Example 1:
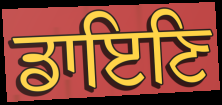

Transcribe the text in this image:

ਡਾਇਣਿ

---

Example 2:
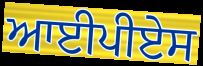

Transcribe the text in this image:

ਆਈਪੀਏਸ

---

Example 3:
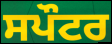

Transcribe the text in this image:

ਸਪੌਟਰ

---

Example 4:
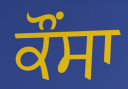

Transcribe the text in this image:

ਕੌਂਸਾ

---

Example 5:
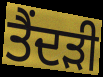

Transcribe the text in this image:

ਤੈਂਦੜੀ